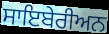
ਸਾਇਬੇਰੀਅਨ